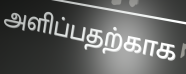
அளிப்பதற்காக